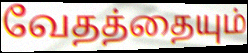
வேதத்தையும்